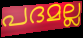
പദമല്ല